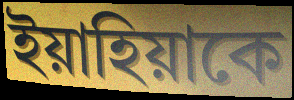
ইয়াহিয়াকে